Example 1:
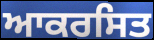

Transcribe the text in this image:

ਆਕਰਸਿਤ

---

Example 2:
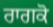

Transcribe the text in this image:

ਰਾਗਕੋ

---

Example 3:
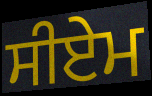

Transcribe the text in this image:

ਸੀਏਮ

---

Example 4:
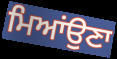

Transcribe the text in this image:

ਮਿਆਂਉਣਾ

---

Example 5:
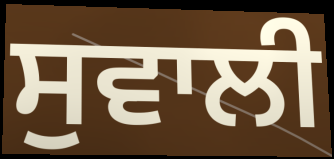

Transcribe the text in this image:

ਸੁਵਾਲੀ